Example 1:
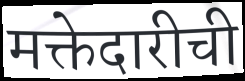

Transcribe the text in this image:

मक्तेदारीची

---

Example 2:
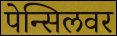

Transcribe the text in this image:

पेन्सिलवर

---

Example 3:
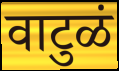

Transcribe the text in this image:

वाटुळं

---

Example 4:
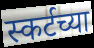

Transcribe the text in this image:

स्कर्टच्या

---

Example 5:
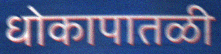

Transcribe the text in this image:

धोकापातळी